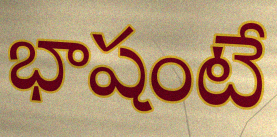
భాషంటే